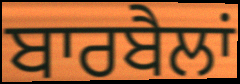
ਬਾਰਬੈਲਾਂ